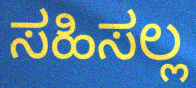
ಸಹಿಸಲ್ಲ